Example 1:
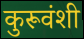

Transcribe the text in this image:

कुरूवंशी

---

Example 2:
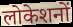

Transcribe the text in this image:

लोकेशनों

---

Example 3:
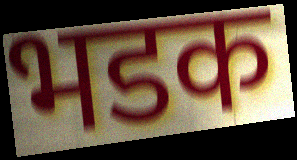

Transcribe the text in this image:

भडक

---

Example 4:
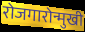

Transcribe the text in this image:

रोजगारोन्मुखी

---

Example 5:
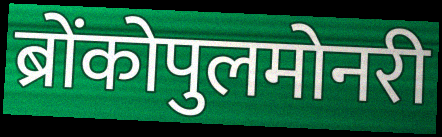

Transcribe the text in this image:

ब्रोंकोपुलमोनरी